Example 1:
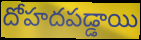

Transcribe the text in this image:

దోహదపడ్డాయి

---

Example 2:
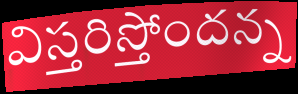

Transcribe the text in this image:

విస్తరిస్తోందన్న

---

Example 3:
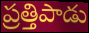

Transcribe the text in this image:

ప్రత్తిపాడు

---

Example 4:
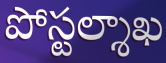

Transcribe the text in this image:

పోస్టల్శాఖ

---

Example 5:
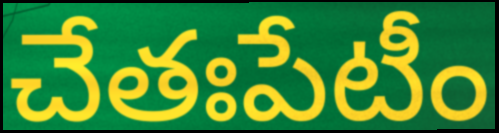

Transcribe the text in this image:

చేతఃపేటీం